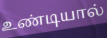
உண்டியால்